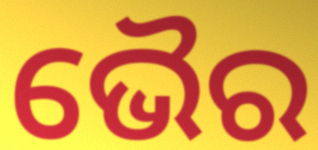
ଭୈର